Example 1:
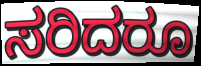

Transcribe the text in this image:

ಸರಿದರೂ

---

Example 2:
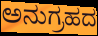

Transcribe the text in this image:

ಅನುಗ್ರಹದ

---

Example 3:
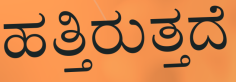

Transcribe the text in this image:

ಹತ್ತಿರುತ್ತದೆ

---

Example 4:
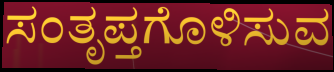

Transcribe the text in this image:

ಸಂತೃಪ್ತಗೊಳಿಸುವ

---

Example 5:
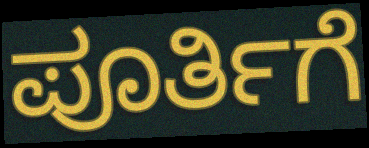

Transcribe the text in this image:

ಪೂರ್ತಿಗೆ